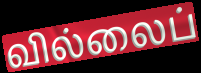
வில்லைப்